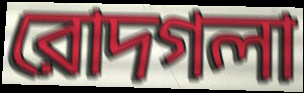
রোদগলা